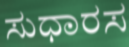
ಸುಧಾರಸ